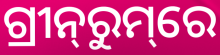
ଗ୍ରୀନ୍‌ରୁମ୍‌ରେ